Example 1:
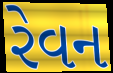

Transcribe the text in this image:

રેવન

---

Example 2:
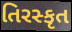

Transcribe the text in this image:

તિરસ્કૃત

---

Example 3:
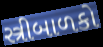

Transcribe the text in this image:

સ્ત્રીબાળકો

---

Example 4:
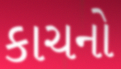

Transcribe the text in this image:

કાચનો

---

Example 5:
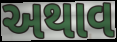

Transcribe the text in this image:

અથાવ